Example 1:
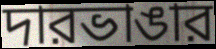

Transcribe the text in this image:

দারভাঙার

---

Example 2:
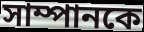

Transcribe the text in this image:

সাম্পানকে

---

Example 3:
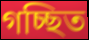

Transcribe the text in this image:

গচ্ছিত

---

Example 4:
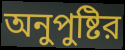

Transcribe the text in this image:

অনুপুষ্টির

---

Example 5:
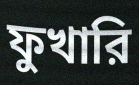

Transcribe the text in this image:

ফুখারি